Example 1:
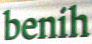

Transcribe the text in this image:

benih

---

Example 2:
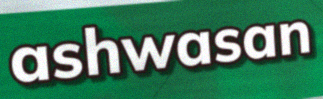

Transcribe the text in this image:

ashwasan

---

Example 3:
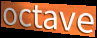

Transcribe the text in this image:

octave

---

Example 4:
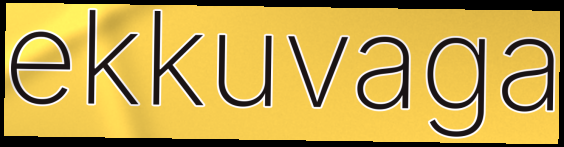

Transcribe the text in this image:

ekkuvaga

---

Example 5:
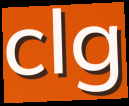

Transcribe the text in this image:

clg